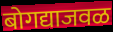
बोगद्याजवळ